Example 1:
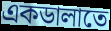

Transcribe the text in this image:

একডালাতে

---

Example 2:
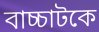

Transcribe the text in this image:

বাচ্চাটকে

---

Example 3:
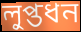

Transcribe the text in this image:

লুপ্তধন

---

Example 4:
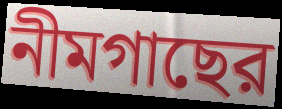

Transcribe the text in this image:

নীমগাছের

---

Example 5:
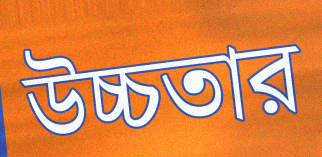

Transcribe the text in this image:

উচ্চতার